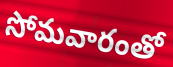
సోమవారంతో